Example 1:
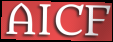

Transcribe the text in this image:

AICF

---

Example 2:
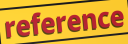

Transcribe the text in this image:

reference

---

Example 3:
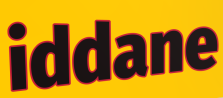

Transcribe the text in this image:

iddane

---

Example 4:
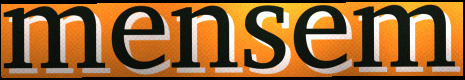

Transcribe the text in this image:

mensem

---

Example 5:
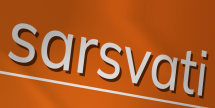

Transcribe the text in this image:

sarsvati